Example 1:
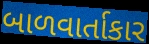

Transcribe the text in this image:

બાળવાર્તાકાર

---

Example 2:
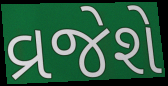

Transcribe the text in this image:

વ્રજેશે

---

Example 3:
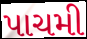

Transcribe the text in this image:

પાચમી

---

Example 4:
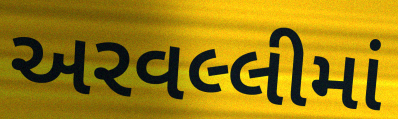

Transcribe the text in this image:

અરવલ્લીમાં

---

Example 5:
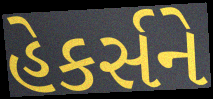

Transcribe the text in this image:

હેકર્સને